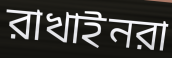
রাখাইনরা